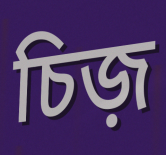
চিজ়